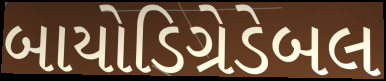
બાયોડિગ્રેડેબલ